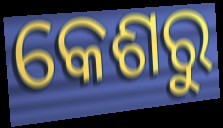
କେଶରୁ